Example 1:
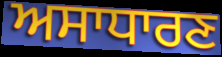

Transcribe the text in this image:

ਅਸਾਧਾਰਣ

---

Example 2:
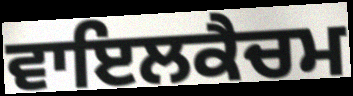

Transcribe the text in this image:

ਵਾਇਲਕੈਚਮ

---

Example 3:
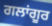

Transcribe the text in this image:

ਗਲਾਂਗੂਰ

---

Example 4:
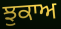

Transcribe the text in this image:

ਝੁਕਾਅ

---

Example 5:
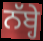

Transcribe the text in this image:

ਨੱਬ੍ਹੇ